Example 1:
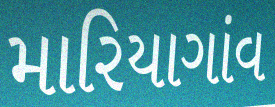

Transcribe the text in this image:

મારિયાગાંવ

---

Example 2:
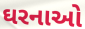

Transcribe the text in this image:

ઘરનાઓ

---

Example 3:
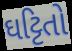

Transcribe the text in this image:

ઘટ્ટિતો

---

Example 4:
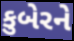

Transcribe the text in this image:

કુબેરને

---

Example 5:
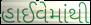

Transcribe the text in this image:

હાઈવેમાંથી